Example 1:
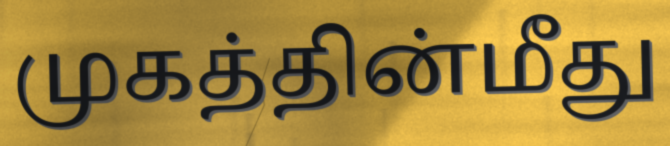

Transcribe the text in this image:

முகத்தின்மீது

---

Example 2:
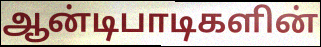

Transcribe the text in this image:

ஆன்டிபாடிகளின்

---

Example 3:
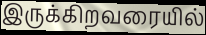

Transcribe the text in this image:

இருக்கிறவரையில்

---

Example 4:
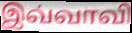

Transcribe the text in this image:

இவ்வாவி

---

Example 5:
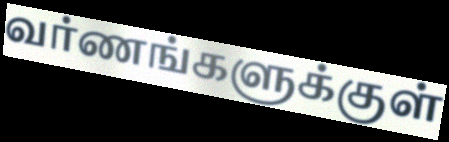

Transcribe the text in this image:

வர்ணங்களுக்குள்